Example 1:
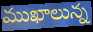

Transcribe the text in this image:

ముఖాలున్న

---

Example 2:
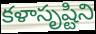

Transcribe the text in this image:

కళాసృష్టిని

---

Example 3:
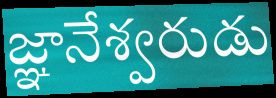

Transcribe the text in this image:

జ్ఞానేశ్వరుడు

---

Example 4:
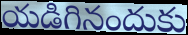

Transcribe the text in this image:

యడిగినందుకు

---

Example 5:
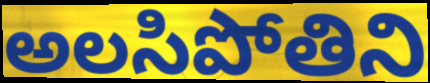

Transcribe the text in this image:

అలసిపోతిని